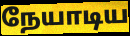
நேயாடிய